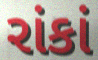
રાંકાં